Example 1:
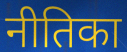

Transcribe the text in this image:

नीतिका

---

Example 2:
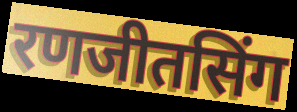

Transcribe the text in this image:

रणजीतसिंग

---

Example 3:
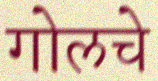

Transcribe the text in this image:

गोलचे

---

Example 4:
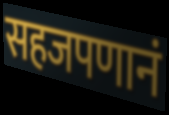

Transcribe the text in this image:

सहजपणानं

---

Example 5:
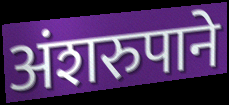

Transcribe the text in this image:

अंशरुपाने